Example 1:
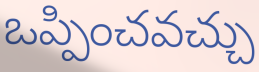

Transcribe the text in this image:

ఒప్పించవచ్చు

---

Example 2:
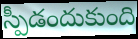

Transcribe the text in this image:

స్పీడందుకుంది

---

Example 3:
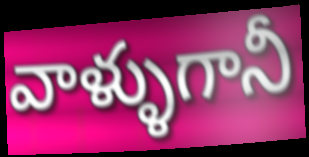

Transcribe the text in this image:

వాళ్ళుగానీ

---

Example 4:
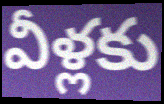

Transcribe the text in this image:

వీళ్లకు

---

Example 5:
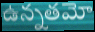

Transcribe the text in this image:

ఉన్నతమో